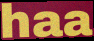
haa